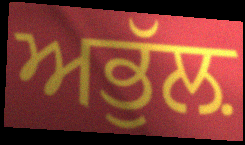
ਅਭੁੱਲ਼